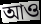
আও